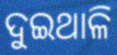
ଦୁଇଥାଳି